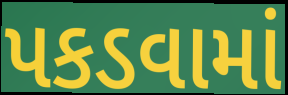
પકડવામાં